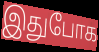
இதுபோக